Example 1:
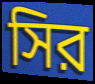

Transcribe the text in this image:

সির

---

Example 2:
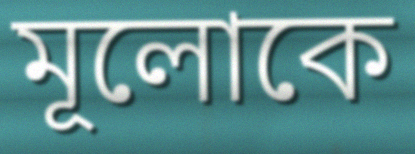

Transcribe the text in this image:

মূলোকে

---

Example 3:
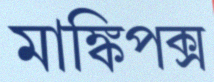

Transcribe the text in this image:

মাঙ্কিপক্স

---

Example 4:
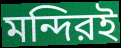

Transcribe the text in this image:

মন্দিরই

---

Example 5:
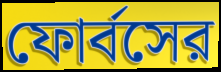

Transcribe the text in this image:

ফোর্বসের